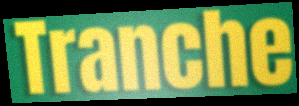
Tranche